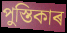
পুস্তিকাৰ